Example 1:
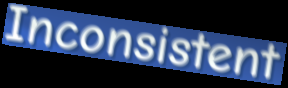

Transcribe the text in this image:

Inconsistent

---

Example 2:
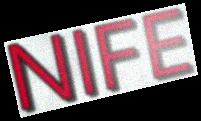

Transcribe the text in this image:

NIFE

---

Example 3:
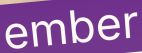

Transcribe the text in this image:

ember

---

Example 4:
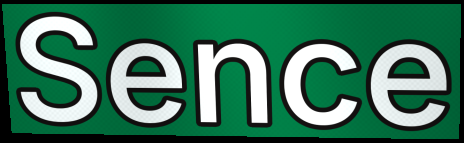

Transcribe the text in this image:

Sence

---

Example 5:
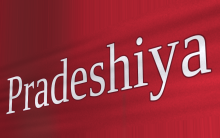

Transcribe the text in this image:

Pradeshiya